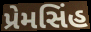
પ્રેમસિંહ